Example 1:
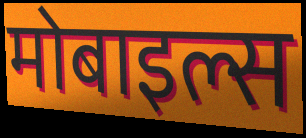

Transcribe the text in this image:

मोबाइल्स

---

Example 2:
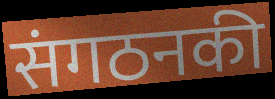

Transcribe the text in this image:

संगठनकी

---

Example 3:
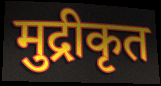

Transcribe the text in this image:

मुद्रीकृत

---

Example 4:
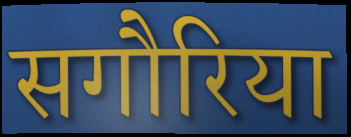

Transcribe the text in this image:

सगौरिया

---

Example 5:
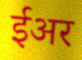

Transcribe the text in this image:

ईअर